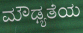
ಮೌಢ್ಯತೆಯ